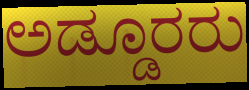
ಅಡ್ಡೂರರು